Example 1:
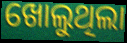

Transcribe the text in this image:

ଖୋଲୁଥିଲା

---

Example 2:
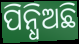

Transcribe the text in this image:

ପିନ୍ଧିଅଛି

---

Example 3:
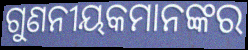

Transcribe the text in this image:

ଗୁଣନୀୟକମାନଙ୍କର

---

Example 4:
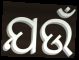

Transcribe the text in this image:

ଯଉଁ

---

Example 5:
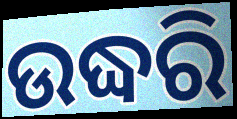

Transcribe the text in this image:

ଉଦ୍ଧରି